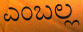
ಎಂಬಲ್ಲ